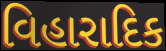
વિહારાદિક